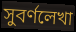
সুবর্ণলেখা